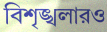
বিশৃঙ্খলারও